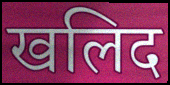
खलिद